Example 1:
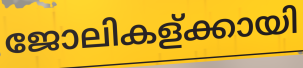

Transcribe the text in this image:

ജോലികള്ക്കായി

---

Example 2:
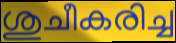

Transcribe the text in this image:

ശുചീകരിച്ച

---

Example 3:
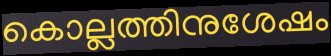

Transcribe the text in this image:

കൊല്ലത്തിനുശേഷം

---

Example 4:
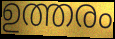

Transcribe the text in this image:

ഉത്തരം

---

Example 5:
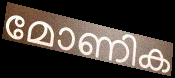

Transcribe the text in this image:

മോണിക